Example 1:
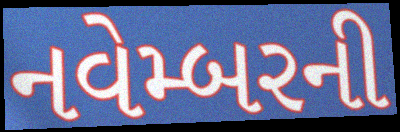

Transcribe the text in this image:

નવેમ્બરની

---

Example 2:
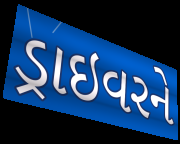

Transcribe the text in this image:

ડ્રાઇવરને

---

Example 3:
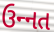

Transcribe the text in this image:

ઉન્‍નત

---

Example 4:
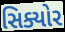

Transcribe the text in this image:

સિક્યોર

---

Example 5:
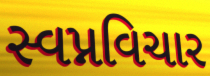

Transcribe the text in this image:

સ્વપ્નવિચાર